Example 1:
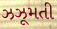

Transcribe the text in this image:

ઝઝૂમતી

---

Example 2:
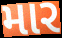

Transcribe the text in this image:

માર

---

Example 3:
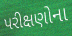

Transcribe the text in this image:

પરીક્ષણોના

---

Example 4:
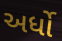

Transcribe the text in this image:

અર્ધો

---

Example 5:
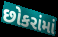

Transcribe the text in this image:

છોકરાંમાં